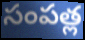
సంపత్ల